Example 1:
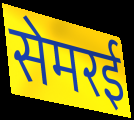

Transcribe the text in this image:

सेमरई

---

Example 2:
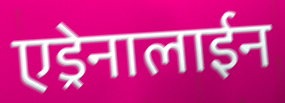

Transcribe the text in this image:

एड्रेनालाईन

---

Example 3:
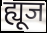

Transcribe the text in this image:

ह्यूज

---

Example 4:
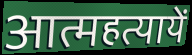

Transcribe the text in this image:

आत्महत्यायें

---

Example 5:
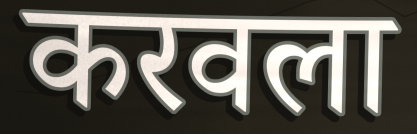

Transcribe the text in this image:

करवला